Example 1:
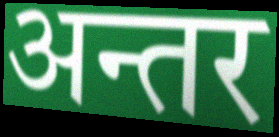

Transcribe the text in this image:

अन्‍तर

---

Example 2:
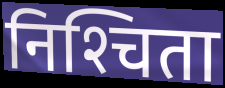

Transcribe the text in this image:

निश्चिता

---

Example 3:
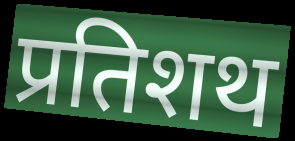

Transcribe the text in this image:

प्रतिशथ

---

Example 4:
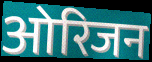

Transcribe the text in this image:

ओरिजन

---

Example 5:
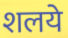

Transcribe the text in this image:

शलये